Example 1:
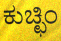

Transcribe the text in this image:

ಕುಚ್ಛಿಂ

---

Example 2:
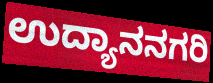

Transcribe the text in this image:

ಉದ್ಯಾನನಗರಿ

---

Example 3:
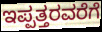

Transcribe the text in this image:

ಇಪ್ಪತ್ತರವರೆಗೆ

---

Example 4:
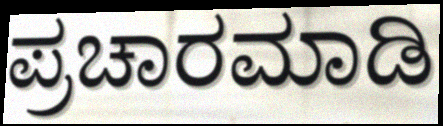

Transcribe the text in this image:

ಪ್ರಚಾರಮಾಡಿ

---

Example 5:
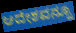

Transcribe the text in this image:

ಆದೇಶವನ್ನೂ